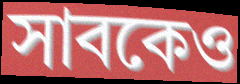
সাবকেও